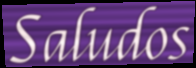
Saludos